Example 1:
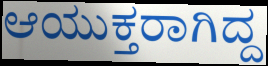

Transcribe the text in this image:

ಆಯುಕ್ತರಾಗಿದ್ದ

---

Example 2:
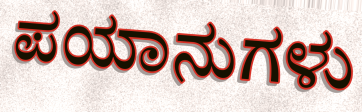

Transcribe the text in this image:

ಪಯಾನುಗಳು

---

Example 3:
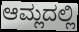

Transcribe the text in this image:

ಆಮ್ಲದಲ್ಲಿ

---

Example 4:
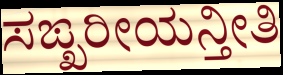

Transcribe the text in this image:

ಸಙ್ಖರೀಯನ್ತೀತಿ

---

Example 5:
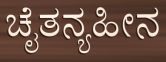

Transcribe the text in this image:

ಚೈತನ್ಯಹೀನ